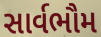
સાર્વભૌમ